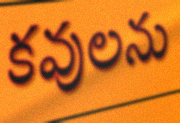
కవులను